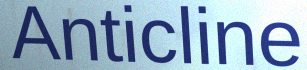
Anticline